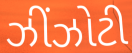
ઝીંઝોટી